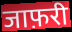
जाफ़री